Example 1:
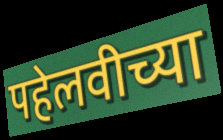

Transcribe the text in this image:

पहेलवीच्या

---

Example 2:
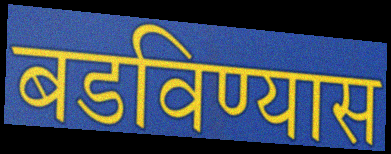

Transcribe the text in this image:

बडविण्यास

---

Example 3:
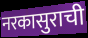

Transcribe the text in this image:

नरकासुराची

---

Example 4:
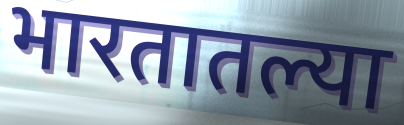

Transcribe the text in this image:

भारतातल्या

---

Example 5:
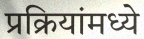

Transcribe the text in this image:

प्रक्रियांमध्ये